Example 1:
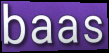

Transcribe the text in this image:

baas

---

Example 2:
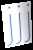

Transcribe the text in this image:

jjj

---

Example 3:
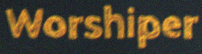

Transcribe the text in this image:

Worshiper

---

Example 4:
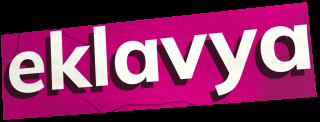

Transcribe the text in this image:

eklavya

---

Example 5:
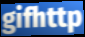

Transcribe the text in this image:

gifhttp